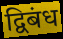
द्विबंध